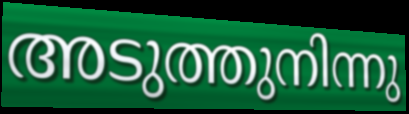
അടുത്തുനിന്നു